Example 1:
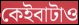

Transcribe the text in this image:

কেইবাটাও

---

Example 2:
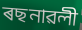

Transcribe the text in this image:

ৰছনাৱলী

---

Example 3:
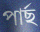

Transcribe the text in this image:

পাৰ্ছ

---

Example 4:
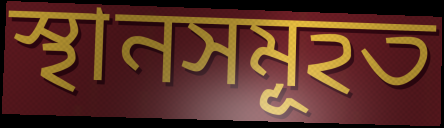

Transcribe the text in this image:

স্থানসমূহত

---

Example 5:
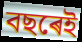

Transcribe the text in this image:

বছৰেই